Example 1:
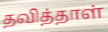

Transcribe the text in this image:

தவித்தாள்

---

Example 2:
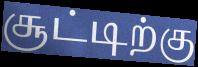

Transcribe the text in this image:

சூட்டிற்கு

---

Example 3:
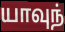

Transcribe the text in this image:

யாவுந்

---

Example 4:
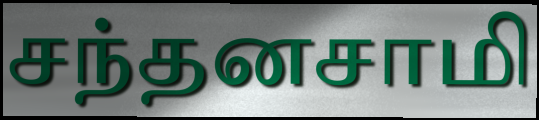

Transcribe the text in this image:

சந்தனசாமி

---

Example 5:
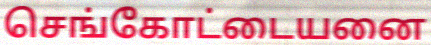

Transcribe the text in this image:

செங்கோட்டையனை